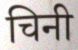
चिनी